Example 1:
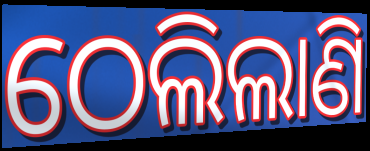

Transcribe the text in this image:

ଠେଲିଲାଣି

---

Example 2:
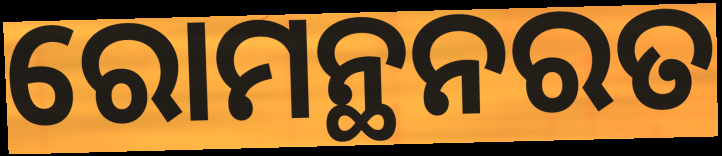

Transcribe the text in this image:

ରୋମନ୍ଥନରତ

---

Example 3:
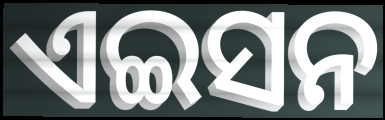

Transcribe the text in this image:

ଏଇସନ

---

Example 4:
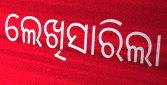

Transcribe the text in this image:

ଲେଖିସାରିଲା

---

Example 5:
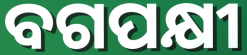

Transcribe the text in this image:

ବଗପକ୍ଷୀ